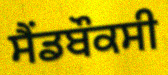
ਸੈਂਡਬੌਕਸੀ